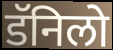
डॅनिलो